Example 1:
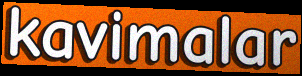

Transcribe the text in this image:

kavimalar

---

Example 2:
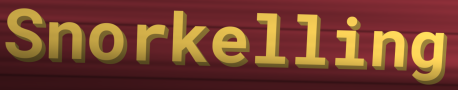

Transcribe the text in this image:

Snorkelling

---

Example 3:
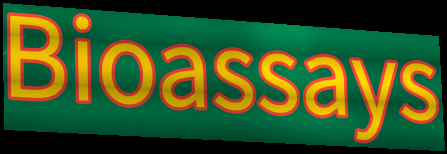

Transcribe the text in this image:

Bioassays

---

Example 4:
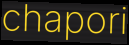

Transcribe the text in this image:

chapori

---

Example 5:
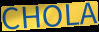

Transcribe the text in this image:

CHOLA